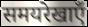
समयरेखाएँ